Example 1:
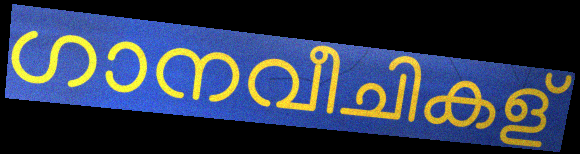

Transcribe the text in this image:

ഗാനവീചികള്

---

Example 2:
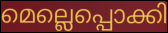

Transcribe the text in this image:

മെല്ലെപ്പൊക്കി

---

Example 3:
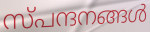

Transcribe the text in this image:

സ്പന്ദനങ്ങൾ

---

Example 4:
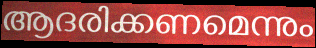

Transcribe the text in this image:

ആദരിക്കണമെന്നും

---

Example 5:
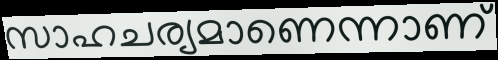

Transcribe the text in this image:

സാഹചര്യമാണെന്നാണ്